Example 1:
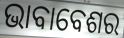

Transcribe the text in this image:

ଭାବାବେଶର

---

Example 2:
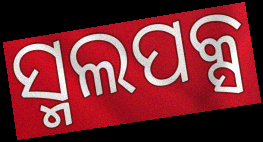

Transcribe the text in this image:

ସ୍ମଲପକ୍ସ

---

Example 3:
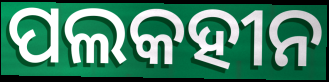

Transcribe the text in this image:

ପଲକହୀନ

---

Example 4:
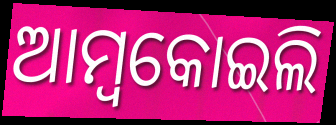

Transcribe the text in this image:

ଆମ୍ବକୋଇଲି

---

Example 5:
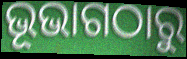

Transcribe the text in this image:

ଭୂଭାଗଠାରୁ